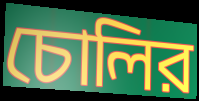
চোলির